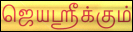
ஜெயஸ்ரீக்கும்